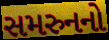
સમરુનનો